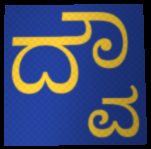
ದ್ವೌ